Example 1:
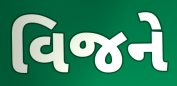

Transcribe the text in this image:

વિજને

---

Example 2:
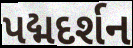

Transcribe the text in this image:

પદ્મદર્શન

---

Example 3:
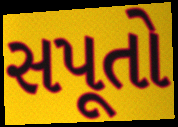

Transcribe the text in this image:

સપૂતો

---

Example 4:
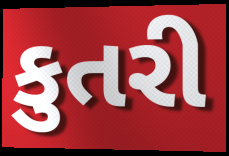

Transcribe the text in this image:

કુતરી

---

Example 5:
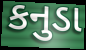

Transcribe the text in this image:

કનુડા